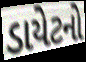
ડાયેટનો